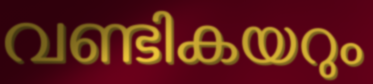
വണ്ടികയറും